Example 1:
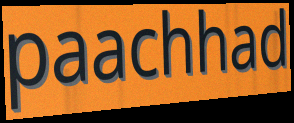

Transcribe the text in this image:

paachhad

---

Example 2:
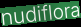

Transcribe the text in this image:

nudiflora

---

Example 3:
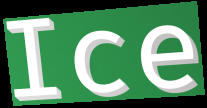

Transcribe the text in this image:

Ice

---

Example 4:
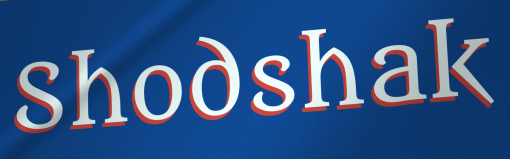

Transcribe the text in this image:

Shodshak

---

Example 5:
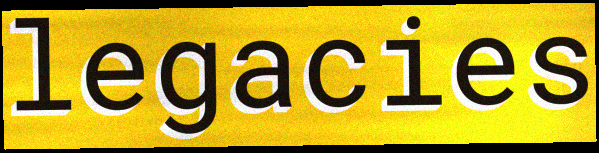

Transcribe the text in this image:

legacies